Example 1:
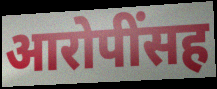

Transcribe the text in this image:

आरोपींसह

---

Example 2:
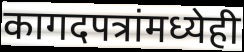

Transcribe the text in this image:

कागदपत्रांमध्येही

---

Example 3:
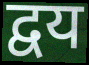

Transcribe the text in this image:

द्वय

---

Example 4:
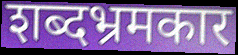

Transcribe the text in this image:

शब्दभ्रमकार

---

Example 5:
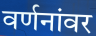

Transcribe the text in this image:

वर्णनांवर